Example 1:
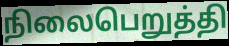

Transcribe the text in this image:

நிலைபெறுத்தி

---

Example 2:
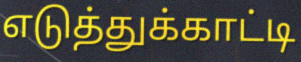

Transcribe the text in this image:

எடுத்துக்காட்டி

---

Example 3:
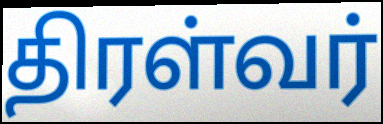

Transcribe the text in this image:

திரள்வர்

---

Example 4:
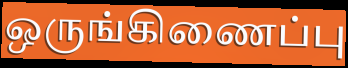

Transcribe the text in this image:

ஒருங்கிணைப்பு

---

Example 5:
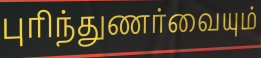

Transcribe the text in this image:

புரிந்துணர்வையும்